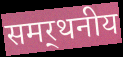
समर्थनीय